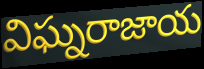
విఘ్నరాజాయ